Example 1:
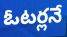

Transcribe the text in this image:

ఓటర్లనే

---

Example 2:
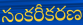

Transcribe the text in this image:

సంకరీకరణ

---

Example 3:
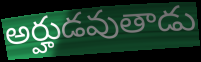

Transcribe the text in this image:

అర్హుడవుతాడు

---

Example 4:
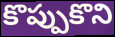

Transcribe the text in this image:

కొప్పుకొని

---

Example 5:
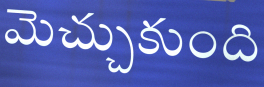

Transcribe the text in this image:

మెచ్చుకుంది